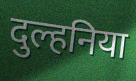
दुल्हनिया